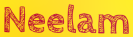
Neelam